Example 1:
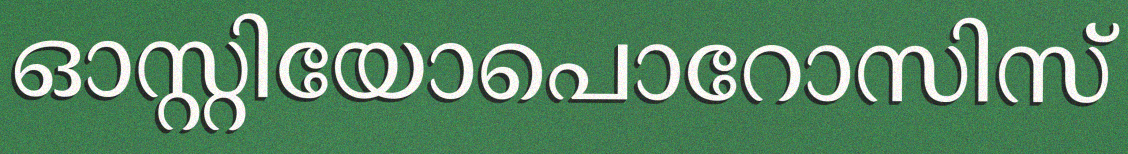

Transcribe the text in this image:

ഓസ്റ്റിയോപൊറോസിസ്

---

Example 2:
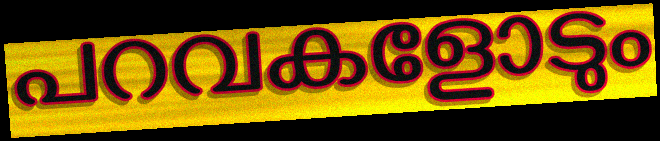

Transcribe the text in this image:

പറവകളോടും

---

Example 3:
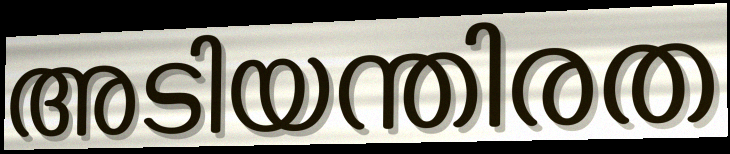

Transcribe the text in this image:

അടിയന്തിരത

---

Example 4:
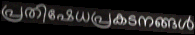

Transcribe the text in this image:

പ്രതിഷേധപ്രകടനങ്ങൾ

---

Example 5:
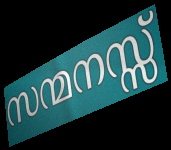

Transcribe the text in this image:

സന്മനസ്സ്